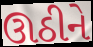
ઊઠીને